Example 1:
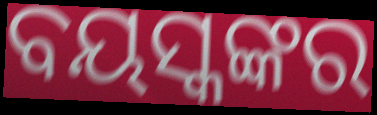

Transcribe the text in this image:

ବୟସ୍କଙ୍କର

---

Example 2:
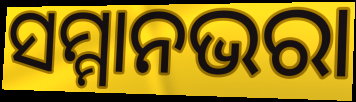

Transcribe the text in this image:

ସମ୍ମାନଭରା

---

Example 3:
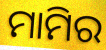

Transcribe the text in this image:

ମାମିର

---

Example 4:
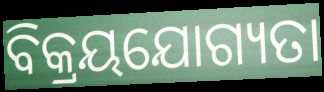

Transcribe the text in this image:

ବିକ୍ରୟଯୋଗ୍ୟତା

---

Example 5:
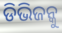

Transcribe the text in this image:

ଡିଭିଜନ୍କୁ